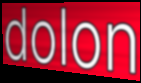
dolon